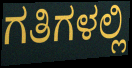
ಗತಿಗಳಲ್ಲಿ